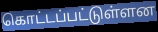
கொட்டப்பட்டுள்ளன